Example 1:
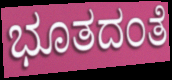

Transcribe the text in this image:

ಭೂತದಂತೆ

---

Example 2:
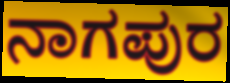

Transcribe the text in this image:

ನಾಗಪುರ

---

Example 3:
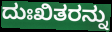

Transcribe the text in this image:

ದುಃಖಿತರನ್ನು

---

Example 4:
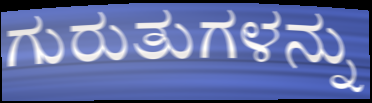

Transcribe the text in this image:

ಗುರುತುಗಳನ್ನು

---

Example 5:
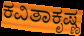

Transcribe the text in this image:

ಕವಿತಾಕೃಷ್ಣ